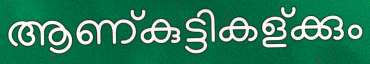
ആണ്കുട്ടികള്ക്കും